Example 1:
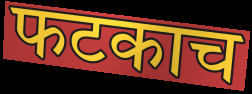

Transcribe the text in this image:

फटकाच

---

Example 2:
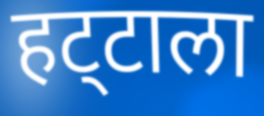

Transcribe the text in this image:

हट्‌टाला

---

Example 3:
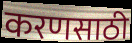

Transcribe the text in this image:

करणसाठी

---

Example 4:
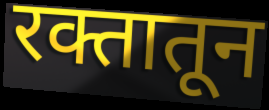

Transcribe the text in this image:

रक्तातून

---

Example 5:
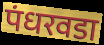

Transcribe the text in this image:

पंधरवडा